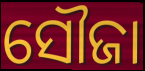
ସୌଜା